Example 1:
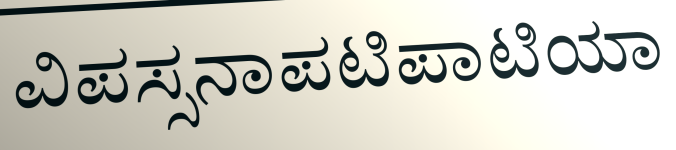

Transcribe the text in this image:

ವಿಪಸ್ಸನಾಪಟಿಪಾಟಿಯಾ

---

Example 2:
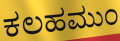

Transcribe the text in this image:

ಕಲಹಮುಂ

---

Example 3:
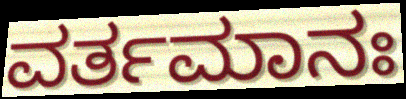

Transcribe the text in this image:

ವರ್ತಮಾನಃ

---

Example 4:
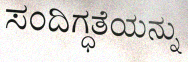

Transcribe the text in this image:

ಸಂದಿಗ್ಧತೆಯನ್ನು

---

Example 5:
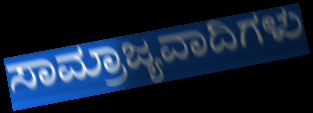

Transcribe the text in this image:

ಸಾಮ್ರಾಜ್ಯವಾದಿಗಳು